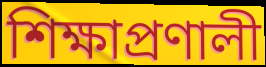
শিক্ষাপ্রণালী